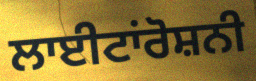
ਲਾਈਟਾਂਰੋਸ਼ਨੀ